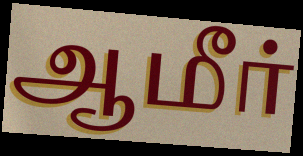
ஆமீர்